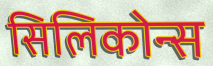
सिलिकोन्स